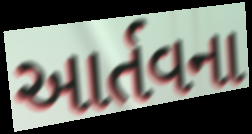
આર્તવના